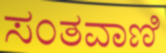
ಸಂತವಾಣಿ